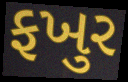
ફખુર